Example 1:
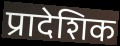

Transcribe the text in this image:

प्रादेशिक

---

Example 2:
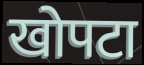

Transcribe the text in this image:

खोपटा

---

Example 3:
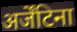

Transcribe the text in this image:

अर्जेंटिना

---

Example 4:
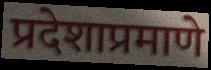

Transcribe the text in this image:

प्रदेशाप्रमाणे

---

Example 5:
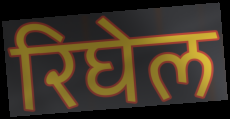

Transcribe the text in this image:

रिघेल